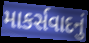
માકર્સવાદનું